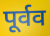
पूर्वव